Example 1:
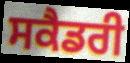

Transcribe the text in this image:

ਸਕੈਡਰੀ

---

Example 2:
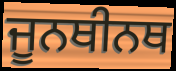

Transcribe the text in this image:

ਜੂਨਥੀਨਥ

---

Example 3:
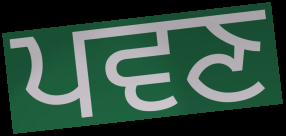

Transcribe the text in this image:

ਪਵਣ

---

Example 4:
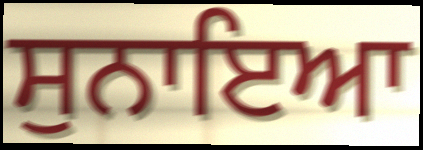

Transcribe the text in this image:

ਸੁਨਾਇਆ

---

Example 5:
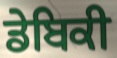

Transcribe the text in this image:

ਡੇਬਿਕੀ